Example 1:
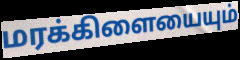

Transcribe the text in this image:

மரக்கிளையையும்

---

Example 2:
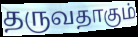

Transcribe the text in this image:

தருவதாகும்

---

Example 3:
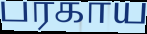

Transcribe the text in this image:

பரகாய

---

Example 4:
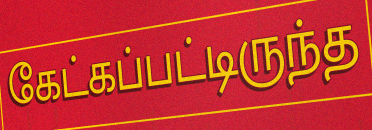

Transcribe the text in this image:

கேட்கப்பட்டிருந்த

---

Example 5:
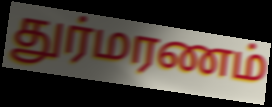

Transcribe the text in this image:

துர்மரணம்